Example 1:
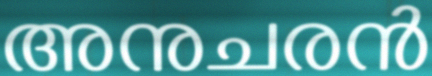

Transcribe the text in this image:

അനുചരൻ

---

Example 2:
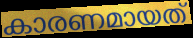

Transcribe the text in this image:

കാരണമായത്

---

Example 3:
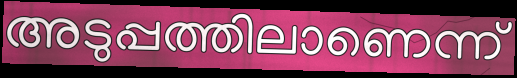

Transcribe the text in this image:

അടുപ്പത്തിലാണെന്ന്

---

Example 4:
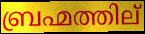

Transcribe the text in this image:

ബ്രഹ്മത്തില്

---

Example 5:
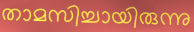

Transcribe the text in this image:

താമസിച്ചായിരുന്നു